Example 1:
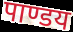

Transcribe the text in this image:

पाण्डय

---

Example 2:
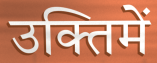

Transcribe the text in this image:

उक्तिमें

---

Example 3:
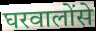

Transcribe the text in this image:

घरवालोंसे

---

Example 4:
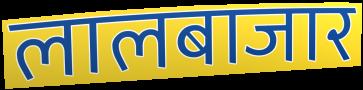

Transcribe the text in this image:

लालबाजार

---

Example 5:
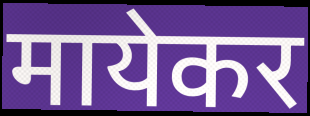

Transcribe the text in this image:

मायेकर